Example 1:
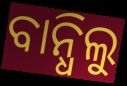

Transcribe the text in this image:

ବାନ୍ଧିଲୁ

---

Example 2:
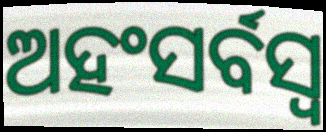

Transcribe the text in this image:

ଅହଂସର୍ବସ୍ୱ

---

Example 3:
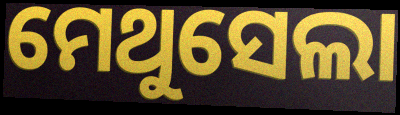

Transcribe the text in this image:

ମେଥୁସେଲା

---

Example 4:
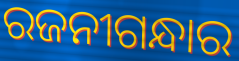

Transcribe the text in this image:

ରଜନୀଗନ୍ଧାର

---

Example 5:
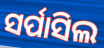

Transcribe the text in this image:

ସର୍ପାସିଲ